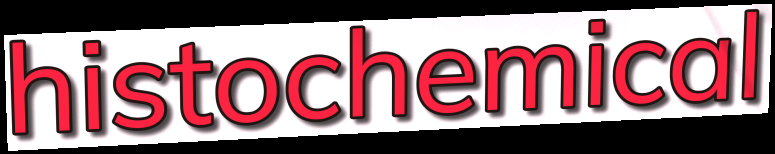
histochemical